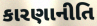
કારણાનીતિ